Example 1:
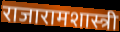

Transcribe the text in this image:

राजारामशास्त्री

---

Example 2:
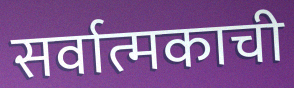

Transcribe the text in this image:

सर्वात्मकाची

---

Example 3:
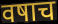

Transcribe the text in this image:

वषाच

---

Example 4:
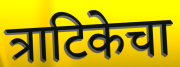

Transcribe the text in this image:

त्राटिकेचा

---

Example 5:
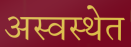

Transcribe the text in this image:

अस्वस्थेत